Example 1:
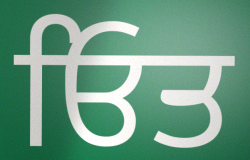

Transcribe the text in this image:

ਓਿਤ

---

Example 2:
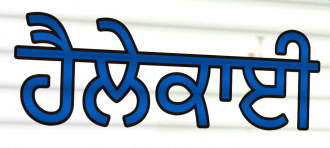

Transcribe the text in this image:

ਹੈਲੇਕਾਈ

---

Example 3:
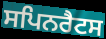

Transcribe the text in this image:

ਸਪਿਨਰੈਟਸ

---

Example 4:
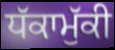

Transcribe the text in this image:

ਧੱਕਾਮੁੱਕੀ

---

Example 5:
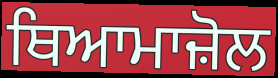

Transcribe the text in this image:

ਥਿਆਮਾਜ਼ੋਲ